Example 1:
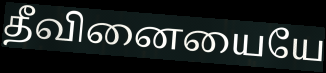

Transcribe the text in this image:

தீவினையையே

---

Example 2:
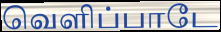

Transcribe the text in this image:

வெளிப்பாடே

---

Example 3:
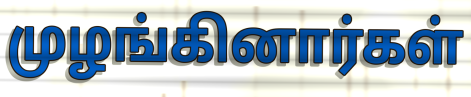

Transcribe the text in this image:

முழங்கினார்கள்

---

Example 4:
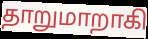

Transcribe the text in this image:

தாறுமாறாகி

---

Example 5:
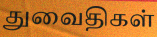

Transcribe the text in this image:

துவைதிகள்